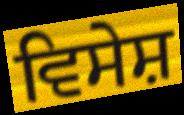
ਵਿਸੇਸ਼